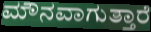
ಮೌನವಾಗುತ್ತಾರೆ